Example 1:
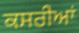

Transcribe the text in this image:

ਕਸਰੀਆਂ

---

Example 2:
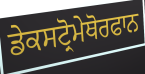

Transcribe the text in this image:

ਡੇਕਸਟ੍ਰੋਮੇਥੋਰਫਾਨ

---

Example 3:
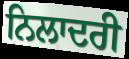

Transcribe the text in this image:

ਨਿਲਾਦਰੀ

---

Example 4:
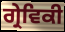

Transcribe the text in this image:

ਗ੍ਰੇਵਿਕੀ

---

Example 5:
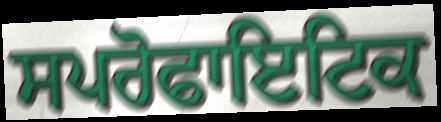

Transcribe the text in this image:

ਸਪਰੋਫਾਇਟਿਕ